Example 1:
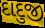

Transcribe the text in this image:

દાદુજી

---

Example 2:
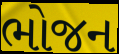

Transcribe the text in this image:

ભોજન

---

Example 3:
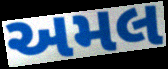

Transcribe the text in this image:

અમલ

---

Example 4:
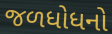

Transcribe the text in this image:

જળધોધનો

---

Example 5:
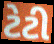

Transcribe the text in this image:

ટેટી